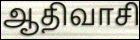
ஆதிவாசி